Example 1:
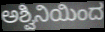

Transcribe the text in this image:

ಅಶ್ವಿನಿಯಿಂದ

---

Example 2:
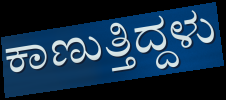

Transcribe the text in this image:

ಕಾಣುತ್ತಿದ್ದಳು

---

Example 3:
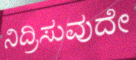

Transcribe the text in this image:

ನಿದ್ರಿಸುವುದೇ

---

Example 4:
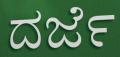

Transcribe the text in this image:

ದರ್ಜೆ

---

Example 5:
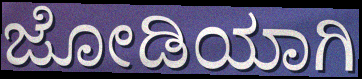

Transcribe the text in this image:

ಜೋಡಿಯಾಗಿ